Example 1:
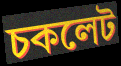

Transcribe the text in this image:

চকলেট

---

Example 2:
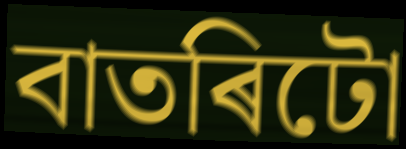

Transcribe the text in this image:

বাতৰিটো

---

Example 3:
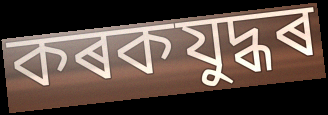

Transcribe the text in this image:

কৰকযুদ্ধৰ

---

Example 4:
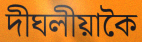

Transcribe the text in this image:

দীঘলীয়াকৈ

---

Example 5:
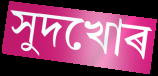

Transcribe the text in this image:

সুদখোৰ